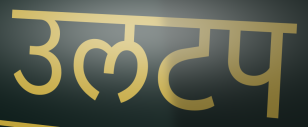
उलटप